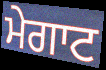
ਮੇਗਾਟ